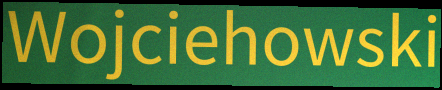
Wojciehowski